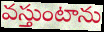
వస్తుంటాను